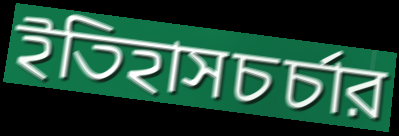
ইতিহাসচর্চার